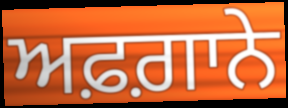
ਅਫ਼ਗ਼ਾਨੇ